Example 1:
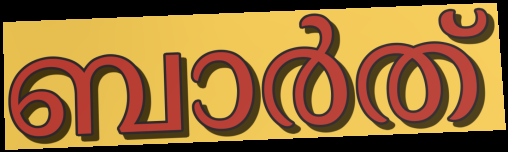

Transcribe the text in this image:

ബാർത്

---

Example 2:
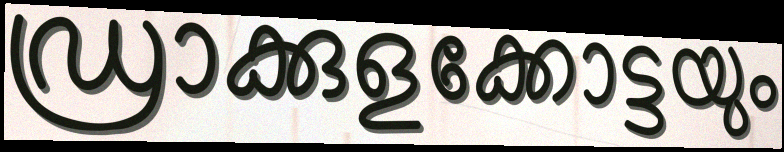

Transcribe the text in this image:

ഡ്രാക്കുളക്കോട്ടയും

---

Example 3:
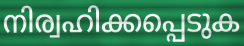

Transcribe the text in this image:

നിര്വഹിക്കപ്പെടുക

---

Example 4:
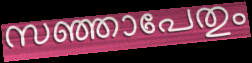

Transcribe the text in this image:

സഞ്ഞാപേതും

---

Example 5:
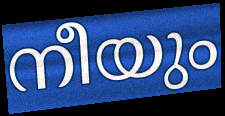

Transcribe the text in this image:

നീയും